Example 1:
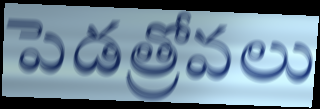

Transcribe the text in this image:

పెడత్రోవలు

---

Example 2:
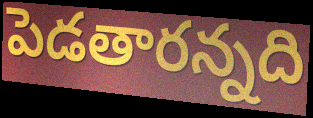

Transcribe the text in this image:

పెడతారన్నది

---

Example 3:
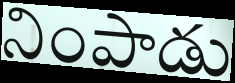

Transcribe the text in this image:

నింపాడు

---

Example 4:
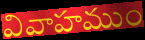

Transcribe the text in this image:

వివాహముం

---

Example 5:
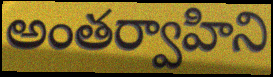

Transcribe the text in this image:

అంతర్వాహిని